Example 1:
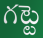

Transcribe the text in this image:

గట్టె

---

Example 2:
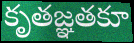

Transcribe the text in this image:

కృతజ్ఞతకూ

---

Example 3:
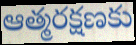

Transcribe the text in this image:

ఆత్మరక్షణకు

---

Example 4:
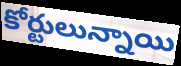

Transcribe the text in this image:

కోర్టులున్నాయి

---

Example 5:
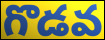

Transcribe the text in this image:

గొడవ